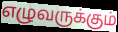
எழுவருக்கும்